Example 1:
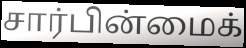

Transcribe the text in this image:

சார்பின்மைக்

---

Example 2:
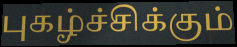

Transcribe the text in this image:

புகழ்ச்சிக்கும்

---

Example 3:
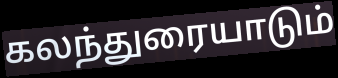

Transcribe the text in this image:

கலந்துரையாடும்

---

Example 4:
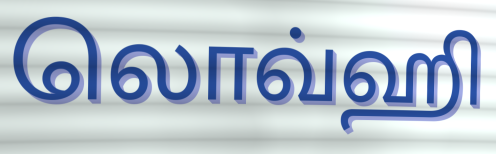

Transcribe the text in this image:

லொவ்ஹி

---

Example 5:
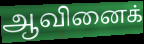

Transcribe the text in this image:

ஆவினைக்